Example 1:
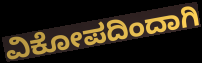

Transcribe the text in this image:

ವಿಕೋಪದಿಂದಾಗಿ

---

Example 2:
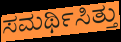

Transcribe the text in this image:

ಸಮರ್ಥಿಸಿತ್ತು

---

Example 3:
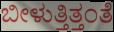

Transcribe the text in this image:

ಬೀಳುತ್ತಿತ್ತಂತೆ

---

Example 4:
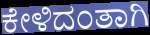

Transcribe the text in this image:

ಕೇಳಿದಂತಾಗಿ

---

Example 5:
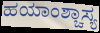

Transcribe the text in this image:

ಹಯಾಂಶ್ಚಾಸ್ಯ